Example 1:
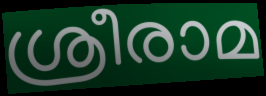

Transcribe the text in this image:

ശ്രീരാമ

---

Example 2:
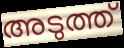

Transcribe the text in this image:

അടുത്ത്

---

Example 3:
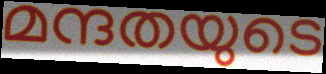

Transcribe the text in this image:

മന്ദതയുടെ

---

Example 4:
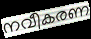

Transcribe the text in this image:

നവീകരണ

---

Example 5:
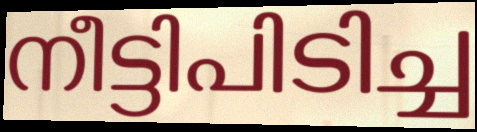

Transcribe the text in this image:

നീട്ടിപിടിച്ച